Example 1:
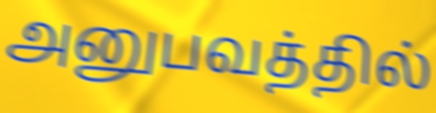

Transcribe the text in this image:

அனுபவத்தில்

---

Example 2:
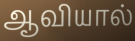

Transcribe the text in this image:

ஆவியால்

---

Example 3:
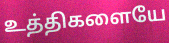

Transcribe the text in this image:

உத்திகளையே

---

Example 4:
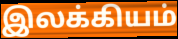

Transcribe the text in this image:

இலக்கியம்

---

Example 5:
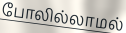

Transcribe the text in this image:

போலில்லாமல்